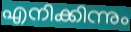
എനിക്കിന്നും